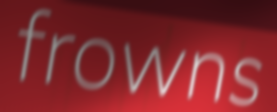
frowns